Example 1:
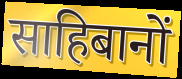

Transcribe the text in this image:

साहिबानों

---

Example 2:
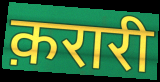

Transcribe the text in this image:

क़रारी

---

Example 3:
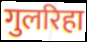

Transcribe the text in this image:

गुलरिहा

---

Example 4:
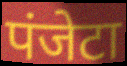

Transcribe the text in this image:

पंजेटा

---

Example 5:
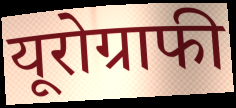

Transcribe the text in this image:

यूरोग्राफी